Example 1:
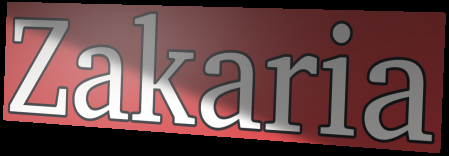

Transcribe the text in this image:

Zakaria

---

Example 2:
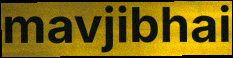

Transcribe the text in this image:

mavjibhai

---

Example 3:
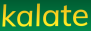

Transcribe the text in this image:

kalate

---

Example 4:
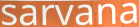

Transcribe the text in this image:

sarvana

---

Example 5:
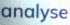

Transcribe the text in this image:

analyse